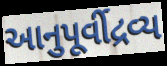
આનુપૂર્વીદ્રવ્ય